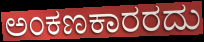
ಅಂಕಣಕಾರರದು